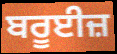
ਬਰੂਈਜ਼